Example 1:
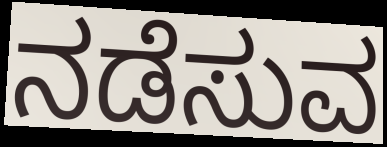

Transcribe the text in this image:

ನಡೆಸುವ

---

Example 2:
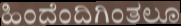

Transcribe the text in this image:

ಹಿಂದೆಂದಿಗಿಂತಲೂ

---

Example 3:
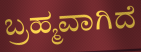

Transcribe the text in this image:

ಬ್ರಹ್ಮವಾಗಿದೆ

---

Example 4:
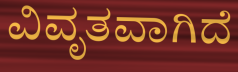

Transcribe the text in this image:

ವಿವೃತವಾಗಿದೆ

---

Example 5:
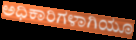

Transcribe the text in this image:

ಅಧಿಕಾರಿಗಳಾಗಿಯೂ